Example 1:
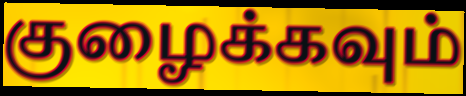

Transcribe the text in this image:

குழைக்கவும்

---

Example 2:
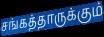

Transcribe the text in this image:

சங்கத்தாருக்கும்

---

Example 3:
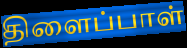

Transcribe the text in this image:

திளைப்பாள்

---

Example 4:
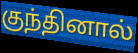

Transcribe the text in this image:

குந்தினால்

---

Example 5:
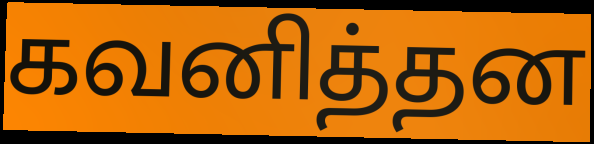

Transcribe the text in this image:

கவனித்தன